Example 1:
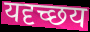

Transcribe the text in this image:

यदृच्छय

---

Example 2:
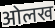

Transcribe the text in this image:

ओलख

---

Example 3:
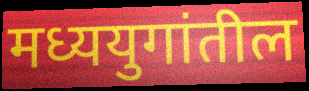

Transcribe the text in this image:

मध्ययुगांतील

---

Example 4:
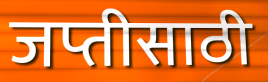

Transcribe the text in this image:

जप्तीसाठी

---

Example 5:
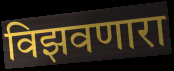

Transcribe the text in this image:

विझवणारा